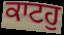
ਕਾਟਹੁ